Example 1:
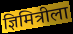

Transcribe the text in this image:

ज्ञिमित्रीला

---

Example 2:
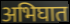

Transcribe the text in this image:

अभिघात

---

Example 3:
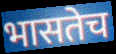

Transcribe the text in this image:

भासतेच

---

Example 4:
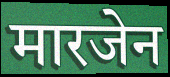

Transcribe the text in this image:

मारजेन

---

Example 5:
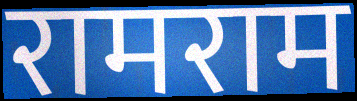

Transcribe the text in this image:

रामराम